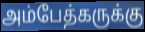
அம்பேத்கருக்கு